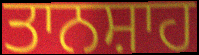
ਤਾਨਸ਼ਾਹ